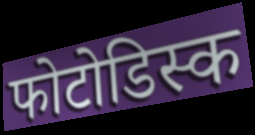
फोटोडिस्क